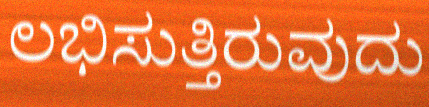
ಲಭಿಸುತ್ತಿರುವುದು